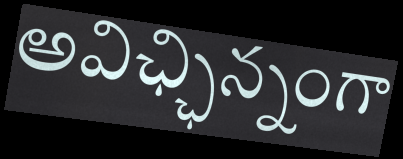
అవిఛ్ఛిన్నంగా